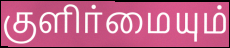
குளிர்மையும்